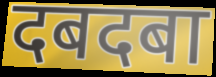
दबदबा